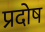
प्रदोष